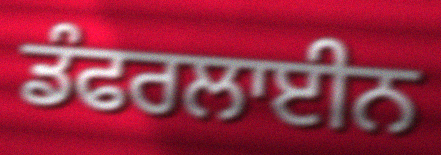
ਡੰਫਰਲਾਈਨ